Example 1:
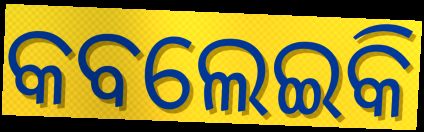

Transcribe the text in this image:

କବଲେଇକି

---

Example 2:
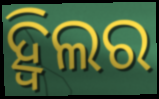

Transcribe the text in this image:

ହ୍ଵିଲର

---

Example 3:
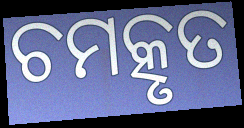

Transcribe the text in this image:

ଚମତ୍କୃତ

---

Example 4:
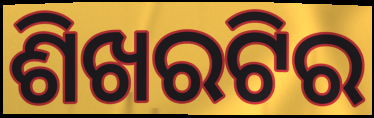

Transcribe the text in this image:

ଶିଖରଟିର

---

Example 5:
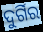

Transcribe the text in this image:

ଦୁର୍ଗିର